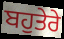
ਬਹੁਤੇਰੇ